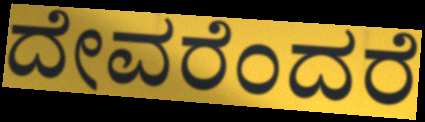
ದೇವರೆಂದರೆ